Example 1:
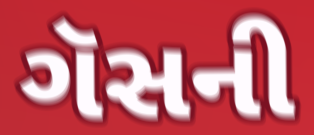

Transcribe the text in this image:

ગૅસની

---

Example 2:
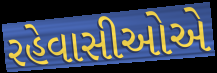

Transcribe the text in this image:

રહેવાસીઓએ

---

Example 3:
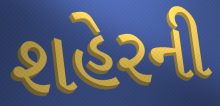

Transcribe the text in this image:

શહેરની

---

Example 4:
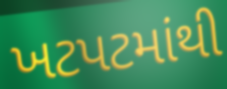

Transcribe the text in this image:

ખટપટમાંથી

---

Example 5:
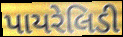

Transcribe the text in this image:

પાયરેલિડી